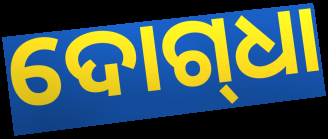
ଦୋଗ୍‌ଧା